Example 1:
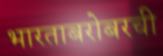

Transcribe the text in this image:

भारताबरोबरची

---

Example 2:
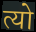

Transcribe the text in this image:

त्यो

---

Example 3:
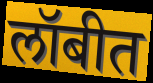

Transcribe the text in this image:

लॉबीत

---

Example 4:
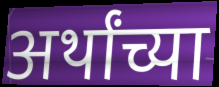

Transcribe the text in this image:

अर्थांच्या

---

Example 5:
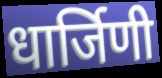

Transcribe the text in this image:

धार्जिणी